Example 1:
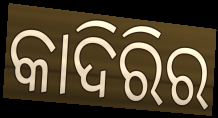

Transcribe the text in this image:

କାଦିରିର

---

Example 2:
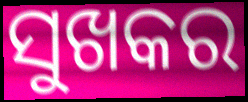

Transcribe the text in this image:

ସୁଖକର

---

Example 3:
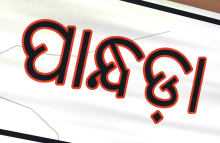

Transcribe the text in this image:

ପାନ୍ଧଡ଼ା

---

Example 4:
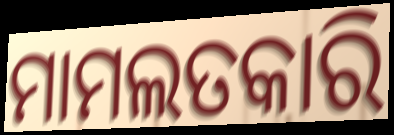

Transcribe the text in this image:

ମାମଲତକାରି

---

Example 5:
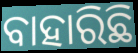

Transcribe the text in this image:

ବାହାରିଛି